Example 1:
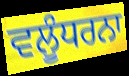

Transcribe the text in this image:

ਵਲੂੰਧਰਨਾ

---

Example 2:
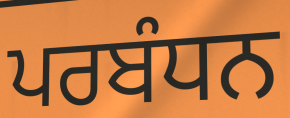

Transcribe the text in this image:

ਪਰਬੰਧਨ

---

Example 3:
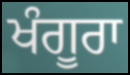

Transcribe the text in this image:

ਖੰਗੂਰਾ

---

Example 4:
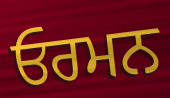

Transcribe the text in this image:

ਓਰਮਨ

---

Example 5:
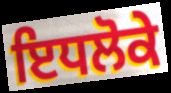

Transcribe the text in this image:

ਇਧਲੋਕੇ